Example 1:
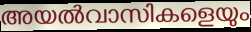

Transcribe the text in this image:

അയൽവാസികളെയും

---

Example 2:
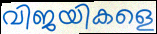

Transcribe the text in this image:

വിജയികളെ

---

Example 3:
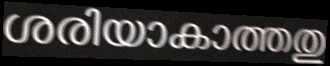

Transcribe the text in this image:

ശരിയാകാത്തതു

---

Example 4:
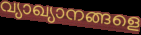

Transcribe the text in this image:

വ്യാഖ്യാനങ്ങളെ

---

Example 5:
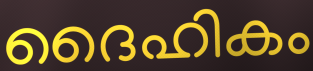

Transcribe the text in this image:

ദൈഹികം